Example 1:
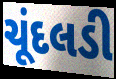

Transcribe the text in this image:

ચૂંદલડી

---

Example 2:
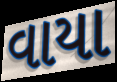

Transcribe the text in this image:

વાયા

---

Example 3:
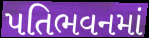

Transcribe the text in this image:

પતિભવનમાં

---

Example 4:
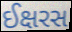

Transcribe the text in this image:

ઈક્ષરસ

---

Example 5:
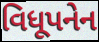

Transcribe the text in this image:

વિધૂપનેન